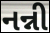
નન્ની